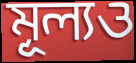
মূল্যও